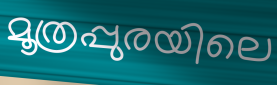
മൂത്രപ്പുരയിലെ